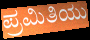
ಪ್ರಮಿತಿಯು